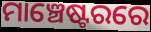
ମାଞ୍ଚେଷ୍ଟରରେ